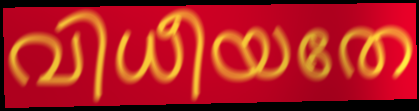
വിധീയതേ